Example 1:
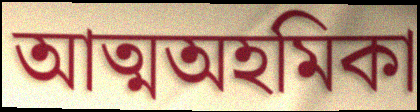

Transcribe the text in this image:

আত্মঅহমিকা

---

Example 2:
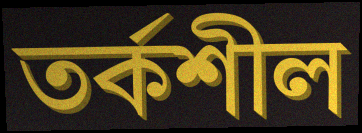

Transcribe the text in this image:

তর্কশীল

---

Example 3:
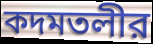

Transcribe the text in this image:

কদমতলীর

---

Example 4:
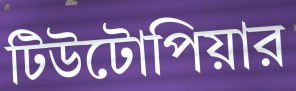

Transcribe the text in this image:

টিউটোপিয়ার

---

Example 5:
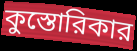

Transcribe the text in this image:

কুস্তোরিকার